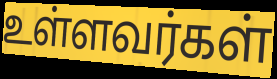
உள்ளவர்கள்